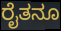
ರೈತನೂ